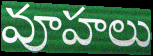
వూహలు